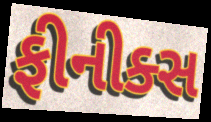
ફીનીક્સ